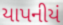
યાપનીયં